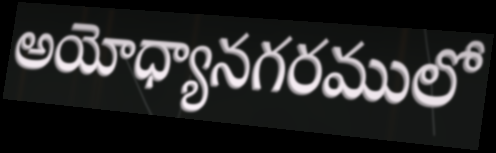
అయోధ్యానగరములో